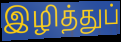
இழித்துப்